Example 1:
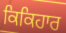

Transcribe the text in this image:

ਕਿਕਿਹਾਰ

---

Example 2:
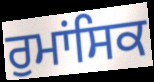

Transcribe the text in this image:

ਰੁਮਾਂਸਿਕ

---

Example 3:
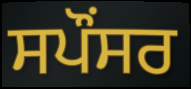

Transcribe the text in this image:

ਸਪੌਂਸਰ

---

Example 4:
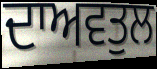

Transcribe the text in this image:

ਦਾਅਵਤੁਲ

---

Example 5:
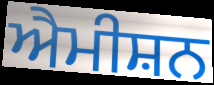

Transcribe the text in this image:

ਐਮੀਸ਼ਨ